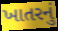
ખાતરનું